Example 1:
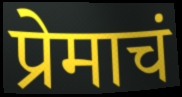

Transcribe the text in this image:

प्रेमाचं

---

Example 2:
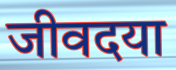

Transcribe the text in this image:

जीवदया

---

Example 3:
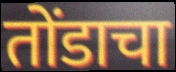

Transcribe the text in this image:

तोंडाचा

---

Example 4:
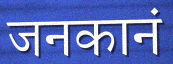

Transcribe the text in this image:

जनकानं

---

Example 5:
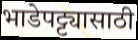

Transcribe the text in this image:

भाडेपट्ट्यासाठी